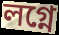
লগ্নে